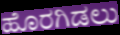
ಹೊರಗಿಡಲು